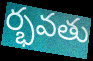
ర్భవతు